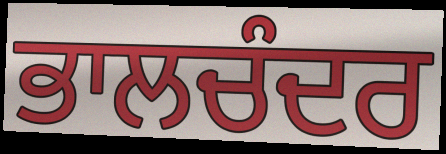
ਭਾਲਚੰਦਰ